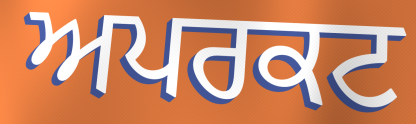
ਅਪਰਕਟ